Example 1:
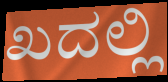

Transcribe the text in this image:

ಖದಲ್ಲಿ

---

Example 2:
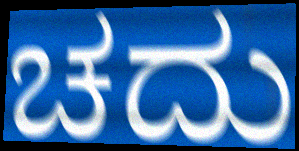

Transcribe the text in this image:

ಚದು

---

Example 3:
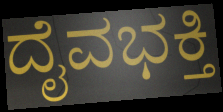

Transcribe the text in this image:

ದೈವಭಕ್ತಿ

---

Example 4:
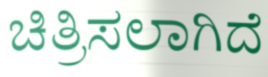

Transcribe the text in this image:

ಚಿತ್ರಿಸಲಾಗಿದೆ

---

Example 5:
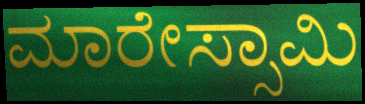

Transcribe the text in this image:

ಮಾರೇಸ್ಸಾಮಿ